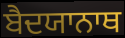
ਬੈਦਯਾਨਾਥ